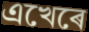
এখেৰে